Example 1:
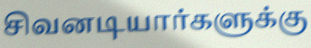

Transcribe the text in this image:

சிவனடியார்களுக்கு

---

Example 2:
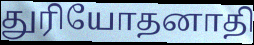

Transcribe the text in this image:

துரியோதனாதி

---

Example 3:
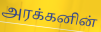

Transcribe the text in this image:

அரக்கனின்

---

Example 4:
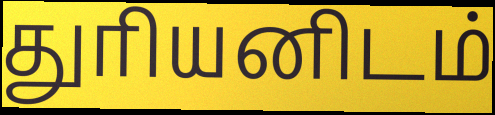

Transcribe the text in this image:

துரியனிடம்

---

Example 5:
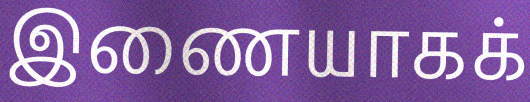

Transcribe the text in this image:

இணையாகக்